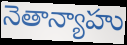
నెతాన్యాహు